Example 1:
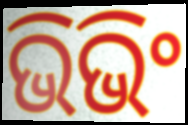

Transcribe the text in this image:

ଭିଭିଂ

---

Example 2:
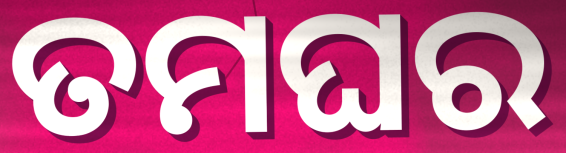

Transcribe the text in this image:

ତମଘର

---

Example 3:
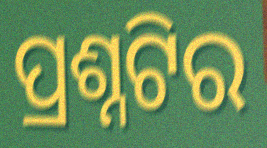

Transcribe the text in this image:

ପ୍ରଶ୍ନଟିର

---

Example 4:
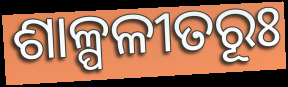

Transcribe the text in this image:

ଶାଳ୍ପଳୀତରୂଃ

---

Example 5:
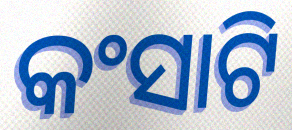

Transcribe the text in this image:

କଂସାଟି